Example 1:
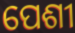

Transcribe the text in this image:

ପେଶୀ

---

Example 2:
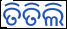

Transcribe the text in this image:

ତିତିଲି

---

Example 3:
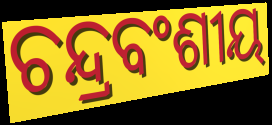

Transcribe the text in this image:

ଚନ୍ଦ୍ରବଂଶୀୟ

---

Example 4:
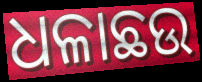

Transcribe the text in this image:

ଧଳାଛଉ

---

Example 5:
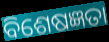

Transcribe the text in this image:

ବିଶେଷଜ୍ଞତା